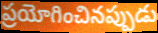
ప్రయోగించినప్పుడు